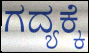
ಗದ್ಯಕ್ಕೆ